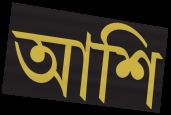
আশি